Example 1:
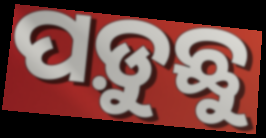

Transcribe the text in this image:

ପଡ଼ୁଛୁ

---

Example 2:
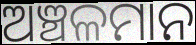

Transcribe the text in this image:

ଅଞ୍ଚଳମାନ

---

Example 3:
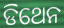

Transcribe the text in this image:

ଡିଥେନ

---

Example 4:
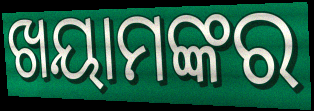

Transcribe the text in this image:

ଖୟାମଙ୍କର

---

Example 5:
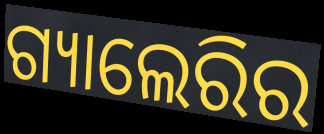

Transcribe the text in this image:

ଗ୍ୟାଲେରିର